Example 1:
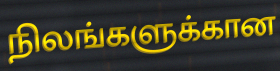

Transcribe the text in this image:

நிலங்களுக்கான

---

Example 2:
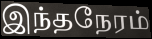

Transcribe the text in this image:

இந்தநேரம்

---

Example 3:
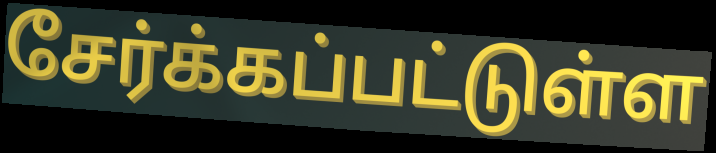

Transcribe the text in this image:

சேர்க்கப்பட்டுள்ள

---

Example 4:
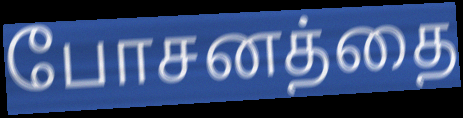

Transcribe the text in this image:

போசனத்தை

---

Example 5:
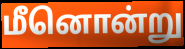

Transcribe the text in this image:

மீனொன்று